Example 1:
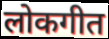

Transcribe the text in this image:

लोकगीत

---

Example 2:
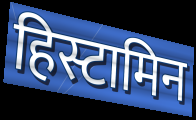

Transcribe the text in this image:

हिस्टामिन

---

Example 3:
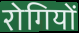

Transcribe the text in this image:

रोगियों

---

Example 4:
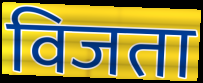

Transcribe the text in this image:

विजता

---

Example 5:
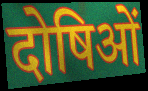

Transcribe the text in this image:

दोषिओं